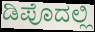
ಡಿಪೊದಲ್ಲಿ